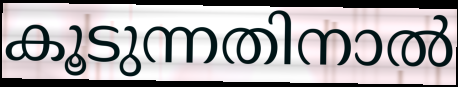
കൂടുന്നതിനാൽ